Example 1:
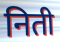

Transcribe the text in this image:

निती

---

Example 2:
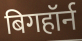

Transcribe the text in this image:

बिगहॉर्न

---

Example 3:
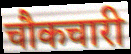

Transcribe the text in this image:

चौकचारी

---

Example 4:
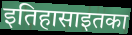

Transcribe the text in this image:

इतिहासाइतका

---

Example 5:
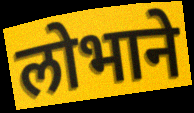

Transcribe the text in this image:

लोभाने